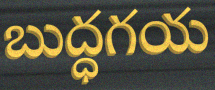
బుద్ధగయ